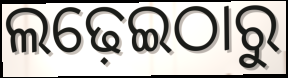
ଲଢ଼େଇଠାରୁ